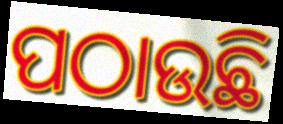
ପଠାଉଛି